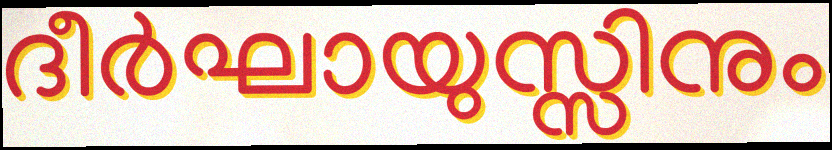
ദീർഘായുസ്സിനും